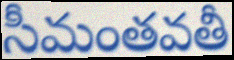
సీమంతవతీ